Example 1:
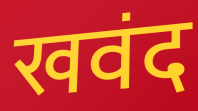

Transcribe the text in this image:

खवंद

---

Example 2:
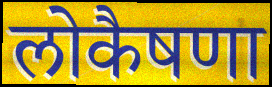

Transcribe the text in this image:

लोकैषणा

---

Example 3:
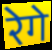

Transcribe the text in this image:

रेगे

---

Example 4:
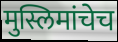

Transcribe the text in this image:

मुस्लिमांचेच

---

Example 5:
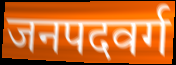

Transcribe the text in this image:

जनपदवर्ग